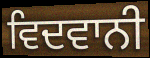
ਵਿਦਵਾਨੀ